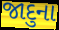
જાદુના